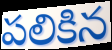
పలికిన